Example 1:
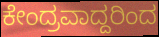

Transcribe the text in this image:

ಕೇಂದ್ರವಾದ್ದರಿಂದ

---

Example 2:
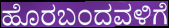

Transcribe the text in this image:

ಹೊರಬಂದವಳಿಗೆ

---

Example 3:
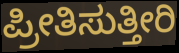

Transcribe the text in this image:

ಪ್ರೀತಿಸುತ್ತೀರಿ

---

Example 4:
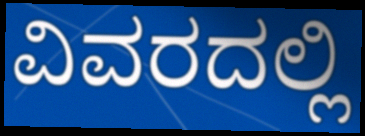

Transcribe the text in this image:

ವಿವರದಲ್ಲಿ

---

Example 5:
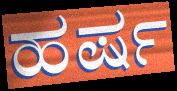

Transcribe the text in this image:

ಹರ್ಷ